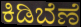
ಕಿಡಿಬೆಣೆ